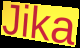
Jika